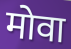
मोवा